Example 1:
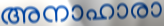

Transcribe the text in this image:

അനാഹാരാ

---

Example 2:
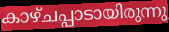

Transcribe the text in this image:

കാഴ്ചപ്പാടായിരുന്നു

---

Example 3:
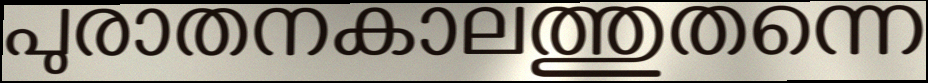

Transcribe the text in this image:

പുരാതനകാലത്തുതന്നെ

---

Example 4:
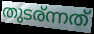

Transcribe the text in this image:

തുടര്ന്നത്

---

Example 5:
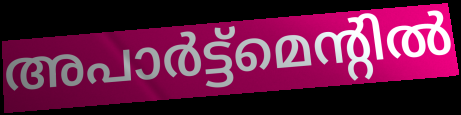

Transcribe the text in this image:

അപാർട്ട്മെന്റിൽ